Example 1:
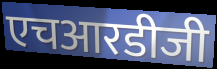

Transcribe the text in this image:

एचआरडीजी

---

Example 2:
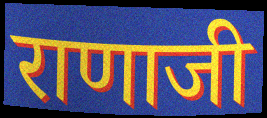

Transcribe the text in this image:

राणाजी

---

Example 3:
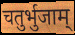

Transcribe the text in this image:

चतुर्भुजाम्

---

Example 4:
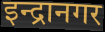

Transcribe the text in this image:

इन्द्रानगर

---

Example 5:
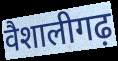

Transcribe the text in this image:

वैशालीगढ़